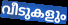
വീടുകളും